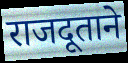
राजदूताने